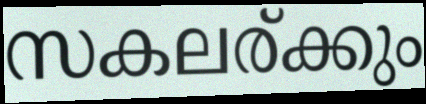
സകലര്ക്കും